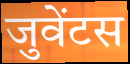
जुवेंटस